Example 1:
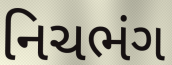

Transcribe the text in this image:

નિચભંગ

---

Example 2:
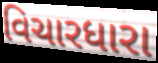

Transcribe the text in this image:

વિચારધારા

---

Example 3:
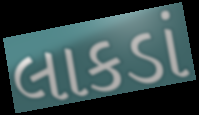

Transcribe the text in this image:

લાકડાં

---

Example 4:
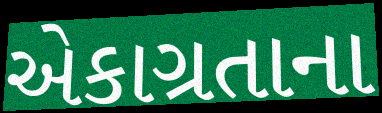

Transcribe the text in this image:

એકાગ્રતાના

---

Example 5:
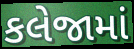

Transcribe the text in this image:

કલેજામાં